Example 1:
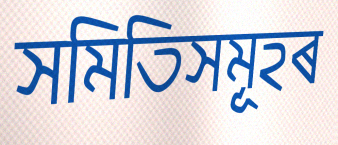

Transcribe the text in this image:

সমিতিসমূহৰ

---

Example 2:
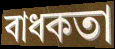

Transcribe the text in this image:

বাধকতা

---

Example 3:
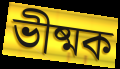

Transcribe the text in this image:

ভীষ্মক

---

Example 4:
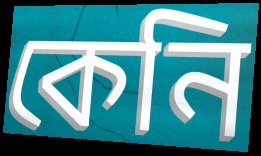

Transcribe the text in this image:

কেনি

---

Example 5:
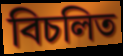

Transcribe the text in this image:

বিচলিত